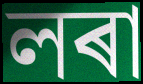
লৰা